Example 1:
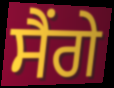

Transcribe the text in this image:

ਸੈਂਗੇ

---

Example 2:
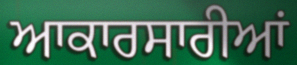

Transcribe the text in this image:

ਆਕਾਰਸਾਰੀਆਂ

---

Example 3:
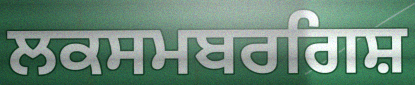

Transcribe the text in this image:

ਲਕਸਮਬਰਗਿਸ਼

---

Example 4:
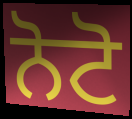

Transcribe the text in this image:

ਨੋਟੋ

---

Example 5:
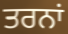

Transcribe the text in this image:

ਤਰਨਾਂ